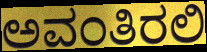
ಅವಂತಿರಲಿ